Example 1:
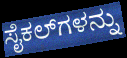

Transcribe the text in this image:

ಸೈಕಲ್‌ಗಳನ್ನು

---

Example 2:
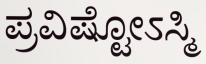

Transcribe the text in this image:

ಪ್ರವಿಷ್ಟೋಽಸ್ಮಿ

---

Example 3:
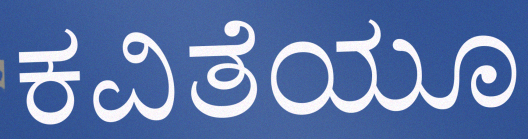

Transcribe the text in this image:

ಕವಿತೆಯೂ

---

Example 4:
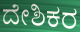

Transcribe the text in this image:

ದೇಶಿಕರ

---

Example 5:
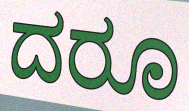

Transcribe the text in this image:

ದರೂ